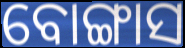
ବୋଙ୍ଗାସ